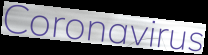
Coronavirus